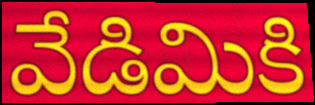
వేడిమికి